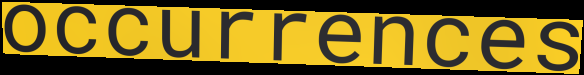
occurrences